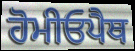
ਹੋਮੀਓਪੈਥ